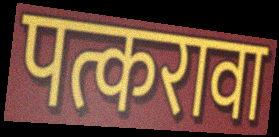
पत्करावा